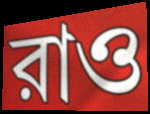
রাও